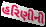
હરિણીની